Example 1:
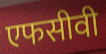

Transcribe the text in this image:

एफसीवी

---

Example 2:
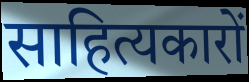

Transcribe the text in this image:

साहित्यकारों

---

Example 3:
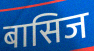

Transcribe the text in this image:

बासिज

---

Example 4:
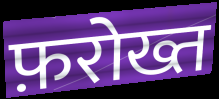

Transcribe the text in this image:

फ़रोख्त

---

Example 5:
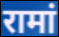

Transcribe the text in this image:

रामां